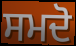
ਸਮਦੋ